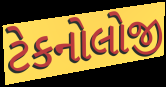
ટેકનોલોજી